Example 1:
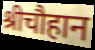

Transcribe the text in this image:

श्रीचौहान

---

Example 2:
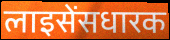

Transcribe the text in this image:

लाइसेंसधारक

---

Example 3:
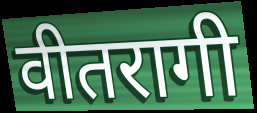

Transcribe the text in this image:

वीतरागी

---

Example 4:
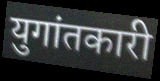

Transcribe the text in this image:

युगांतकारी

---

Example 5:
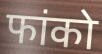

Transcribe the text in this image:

फांको